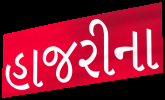
હાજરીના